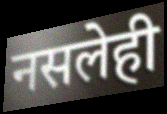
नसलेही